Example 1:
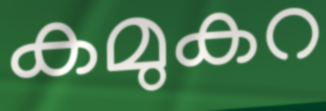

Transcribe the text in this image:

കമുകറ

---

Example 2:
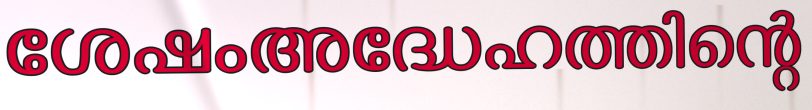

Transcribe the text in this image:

ശേഷംഅദ്ധേഹത്തിന്റെ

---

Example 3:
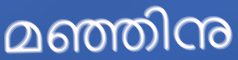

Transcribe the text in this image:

മഞ്ഞിനു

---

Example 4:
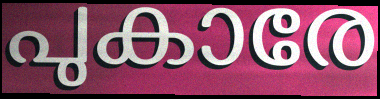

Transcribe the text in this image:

പുകാരേ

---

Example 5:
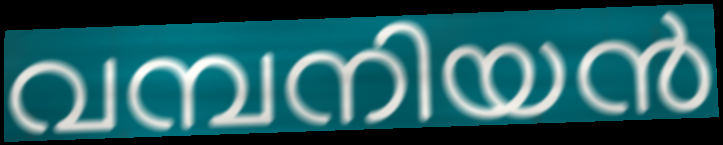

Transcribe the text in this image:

വമ്പനിയൻ